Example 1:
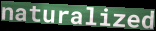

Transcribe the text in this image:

naturalized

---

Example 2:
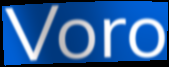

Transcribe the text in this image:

Voro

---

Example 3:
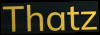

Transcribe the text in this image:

Thatz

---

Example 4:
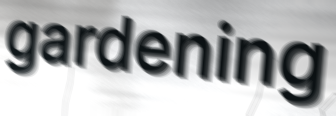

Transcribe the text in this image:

gardening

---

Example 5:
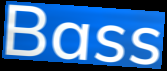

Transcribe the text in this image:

Bass